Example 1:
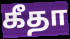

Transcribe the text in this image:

கீதா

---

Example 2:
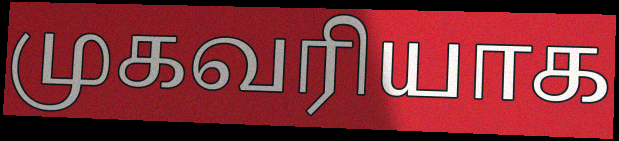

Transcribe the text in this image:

முகவரியாக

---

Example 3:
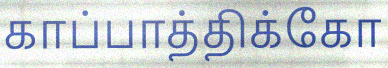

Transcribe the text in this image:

காப்பாத்திக்கோ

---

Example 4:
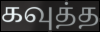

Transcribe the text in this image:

கவுத்த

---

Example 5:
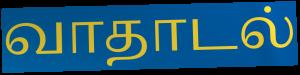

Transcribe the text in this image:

வாதாடல்